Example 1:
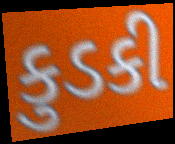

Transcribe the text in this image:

કુડકી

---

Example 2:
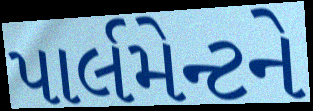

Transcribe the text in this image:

પાર્લમેન્ટને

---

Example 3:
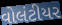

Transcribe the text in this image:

વોલંટીયર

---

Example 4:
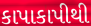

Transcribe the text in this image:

કાપાકાપીથી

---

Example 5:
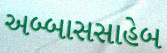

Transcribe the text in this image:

અબ્બાસસાહેબ